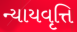
ન્યાયવૃત્તિ